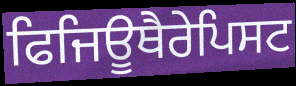
ਫਿਜਿਊਥੈਰੇਪਿਸਟ